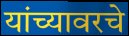
यांच्यावरचे